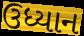
ઉધ્યાન